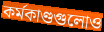
কর্মকাণ্ডগুলোও